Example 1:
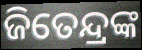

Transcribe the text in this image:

ଜିତେନ୍ଦ୍ରଙ୍କ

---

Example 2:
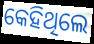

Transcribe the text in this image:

କେହିଥିଲେ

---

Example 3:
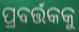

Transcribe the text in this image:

ପ୍ରବର୍ତ୍ତକକୁ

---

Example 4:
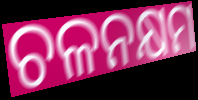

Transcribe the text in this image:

ଚଳନକ୍ଷମ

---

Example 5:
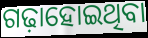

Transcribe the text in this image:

ଗଢ଼ାହୋଇଥିବା